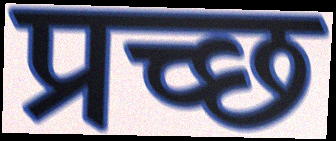
प्रच्छ